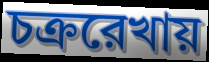
চক্ররেখায়